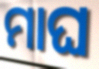
ମାଘ